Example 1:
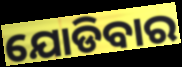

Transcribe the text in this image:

ଯୋଡିବାର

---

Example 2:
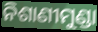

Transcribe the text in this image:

ନିଶାଣୀମୁଣ୍ଡା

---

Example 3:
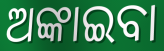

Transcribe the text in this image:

ଅଙ୍କାଇବା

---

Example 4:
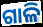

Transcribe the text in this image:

ଗାଳି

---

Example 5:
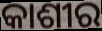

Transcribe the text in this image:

କାଶୀର